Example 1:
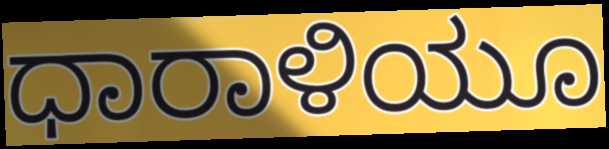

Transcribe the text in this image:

ಧಾರಾಳಿಯೂ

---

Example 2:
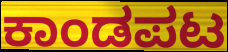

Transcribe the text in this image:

ಕಾಂಡಪಟ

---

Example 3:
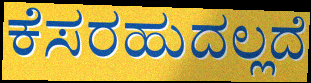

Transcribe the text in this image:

ಕೆಸರಹುದಲ್ಲದೆ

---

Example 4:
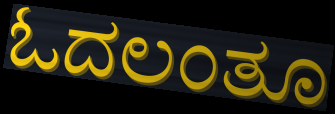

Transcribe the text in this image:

ಓದಲಂತೂ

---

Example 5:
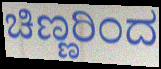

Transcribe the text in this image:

ಚಿಣ್ಣರಿಂದ